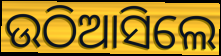
ଉଠିଆସିଲେ